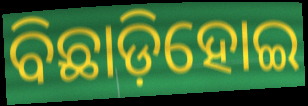
ବିଛାଡ଼ିହୋଇ